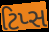
ટિપ્સ